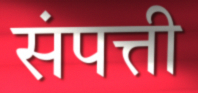
संपत्ती